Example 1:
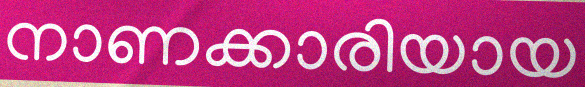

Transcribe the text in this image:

നാണക്കാരിയായ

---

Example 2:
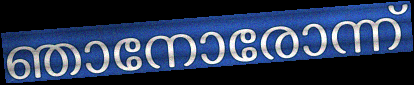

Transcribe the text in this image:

ഞാനോരോന്ന്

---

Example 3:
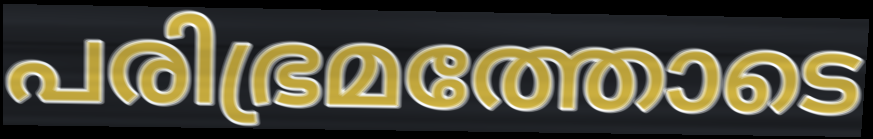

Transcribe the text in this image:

പരിഭ്രമത്തോടെ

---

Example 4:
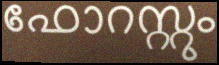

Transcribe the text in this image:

ഫോറസ്റ്റും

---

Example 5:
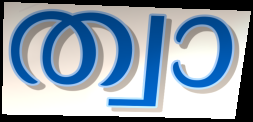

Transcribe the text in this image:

ത്വാ